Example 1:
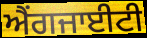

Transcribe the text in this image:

ਐਂਗਜਾਈਟੀ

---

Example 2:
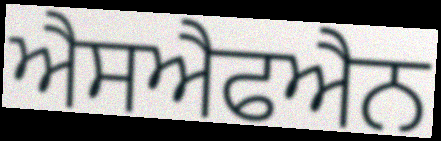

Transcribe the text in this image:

ਐਸਐਫਐਨ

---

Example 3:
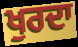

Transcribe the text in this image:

ਖੁਰਦਾ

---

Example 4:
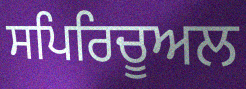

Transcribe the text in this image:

ਸਪਿਰਿਚੂਅਲ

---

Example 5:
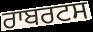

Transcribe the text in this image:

ਰਾਬਰਟਸ